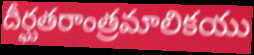
దీర్ఘతరాంత్రమాలికయు